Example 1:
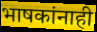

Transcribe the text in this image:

भाषकांनाही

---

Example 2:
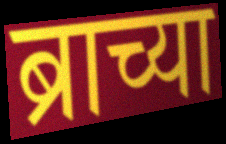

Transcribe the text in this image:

ब्राच्या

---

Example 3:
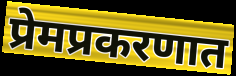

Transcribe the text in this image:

प्रेमप्रकरणात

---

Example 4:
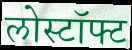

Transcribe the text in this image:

लोस्टॉफ्ट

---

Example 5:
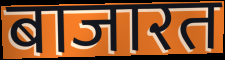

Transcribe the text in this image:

बाजारत